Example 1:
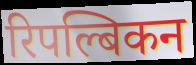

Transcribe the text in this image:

रिपल्बिकन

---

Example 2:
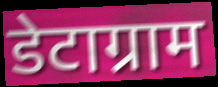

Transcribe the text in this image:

डेटाग्राम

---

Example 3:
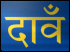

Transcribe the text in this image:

दावँ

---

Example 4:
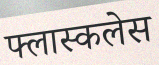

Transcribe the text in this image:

फ्लास्कलेस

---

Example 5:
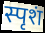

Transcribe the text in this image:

स्पृशं